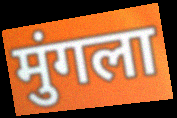
मुंगला